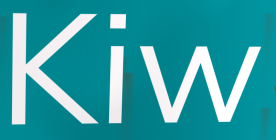
Kiw